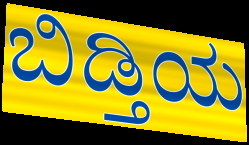
ಬಿಡ್ತಿಯ